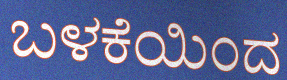
ಬಳಕೆಯಿಂದ